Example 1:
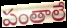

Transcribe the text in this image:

పంతాలే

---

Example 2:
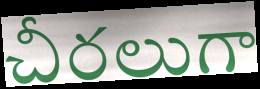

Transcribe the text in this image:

చీరలుగా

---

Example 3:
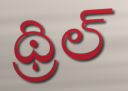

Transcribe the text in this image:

థ్రిల్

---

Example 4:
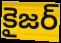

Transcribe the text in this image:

కైజర్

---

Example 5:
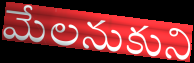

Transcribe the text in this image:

మేలనుకుని